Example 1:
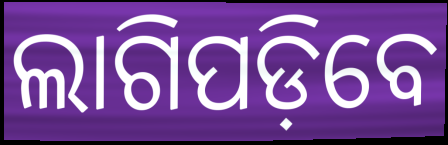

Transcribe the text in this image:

ଲାଗିପଡ଼ିବେ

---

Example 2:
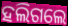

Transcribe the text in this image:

ହଲିଗଲେ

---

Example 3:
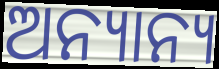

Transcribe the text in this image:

ଅନ୍ୟାନ୍ଯ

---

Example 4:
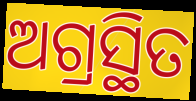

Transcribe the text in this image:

ଅଗ୍ରସ୍ଥିତ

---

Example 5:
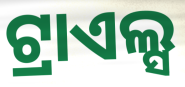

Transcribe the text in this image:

ଟ୍ରାଏଲ୍ସ